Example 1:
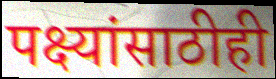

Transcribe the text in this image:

पक्ष्यांसाठीही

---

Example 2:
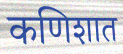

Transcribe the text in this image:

कणिशात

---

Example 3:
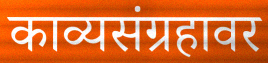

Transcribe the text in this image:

काव्यसंग्रहावर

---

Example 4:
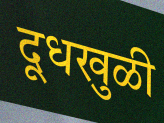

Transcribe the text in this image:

दूधखुळी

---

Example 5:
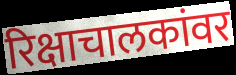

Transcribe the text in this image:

रिक्षाचालकांवर